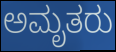
ಅಮೃತರು